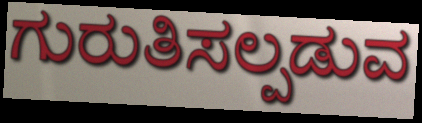
ಗುರುತಿಸಲ್ಪಡುವ